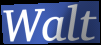
Walt